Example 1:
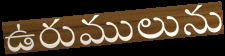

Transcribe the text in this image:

ఉరుములును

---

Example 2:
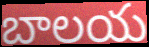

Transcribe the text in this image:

బాలయ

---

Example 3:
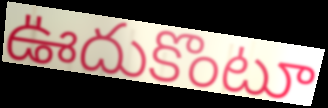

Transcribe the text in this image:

ఊదుకొంటూ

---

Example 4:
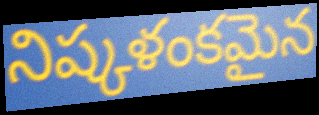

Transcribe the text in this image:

నిష్కళంకమైన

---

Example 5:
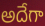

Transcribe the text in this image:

అదేగా